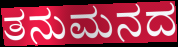
ತನುಮನದ